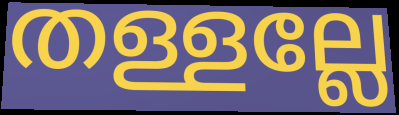
തള്ളല്ലേ